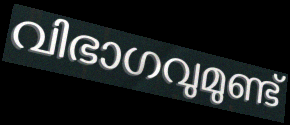
വിഭാഗവുമുണ്ട്